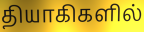
தியாகிகளில்